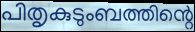
പിതൃകുടുംബത്തിന്റെ